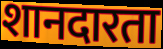
शानदारता